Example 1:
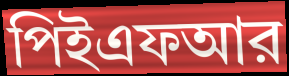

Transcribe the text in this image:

পিইএফআর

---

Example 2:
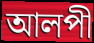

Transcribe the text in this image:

আলপী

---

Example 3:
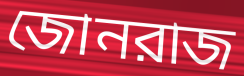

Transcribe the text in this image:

জোনরাজ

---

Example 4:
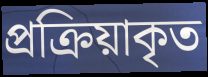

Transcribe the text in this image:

প্রক্রিয়াকৃত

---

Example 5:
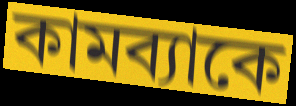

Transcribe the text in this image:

কামব্যাকে